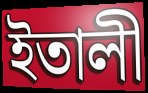
ইতালী